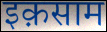
इक़साम